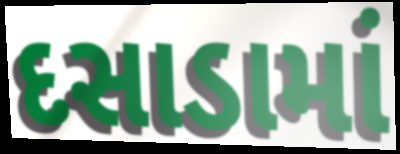
દસાડામાં